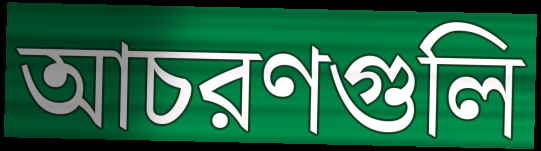
আচরণগুলি